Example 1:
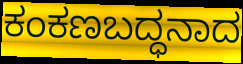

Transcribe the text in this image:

ಕಂಕಣಬದ್ಧನಾದ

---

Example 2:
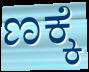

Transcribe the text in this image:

ಣಕ್ಕೆ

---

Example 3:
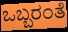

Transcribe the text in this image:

ಒಬ್ಬರಂತೆ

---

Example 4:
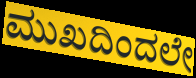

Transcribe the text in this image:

ಮುಖದಿಂದಲೇ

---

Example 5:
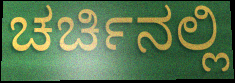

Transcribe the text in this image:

ಚರ್ಚಿನಲ್ಲಿ